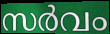
സർവം